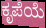
ಕೃಪೆಯೆ